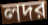
লদর